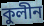
কুলীন